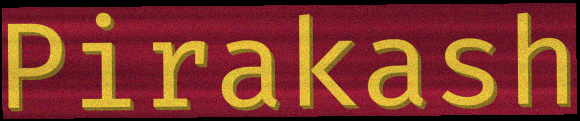
Pirakash